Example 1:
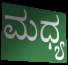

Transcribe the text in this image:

ಮಧ್ಯ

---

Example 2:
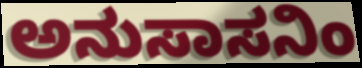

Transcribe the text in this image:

ಅನುಸಾಸನಿಂ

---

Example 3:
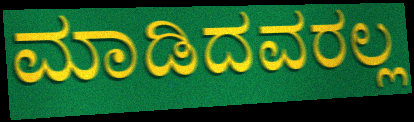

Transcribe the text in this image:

ಮಾಡಿದವರಲ್ಲ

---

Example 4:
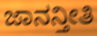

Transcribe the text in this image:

ಜಾನನ್ತೀತಿ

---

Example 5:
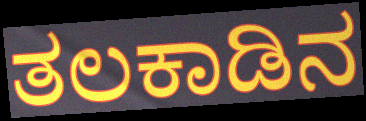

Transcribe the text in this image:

ತಲಕಾಡಿನ